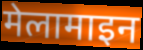
मेलामाइन